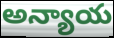
అన్యాయ